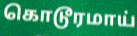
கொடூரமாய்